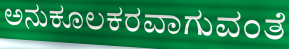
ಅನುಕೂಲಕರವಾಗುವಂತೆ